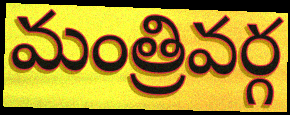
మంత్రివర్గ